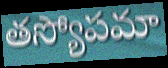
తస్యోపమా